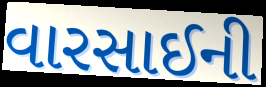
વારસાઈની